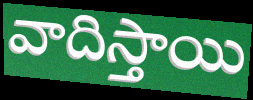
వాదిస్తాయి